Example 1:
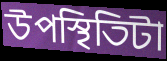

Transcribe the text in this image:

উপস্থিতিটা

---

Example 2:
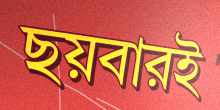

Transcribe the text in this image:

ছয়বারই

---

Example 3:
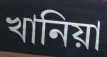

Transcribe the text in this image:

খানিয়া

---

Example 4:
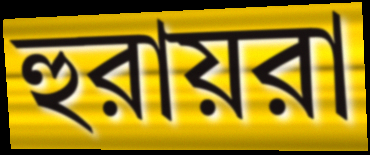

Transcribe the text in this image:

হুরায়রা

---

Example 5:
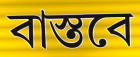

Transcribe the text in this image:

বাস্তবে